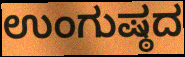
ಉಂಗುಷ್ಠದ